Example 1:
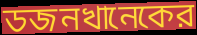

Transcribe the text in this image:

ডজনখানেকের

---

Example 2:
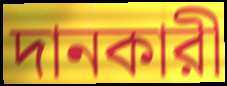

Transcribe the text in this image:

দানকারী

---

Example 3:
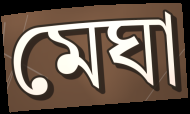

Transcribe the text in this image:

মেঘা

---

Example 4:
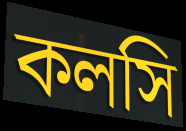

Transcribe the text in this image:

কলসি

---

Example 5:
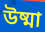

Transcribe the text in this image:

উষ্মা